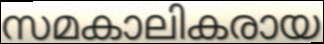
സമകാലികരായ